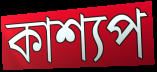
কাশ্যপ